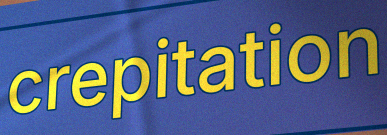
crepitation